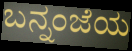
ಬನ್ನಂಜೆಯ